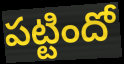
పట్టిందో